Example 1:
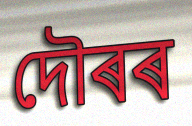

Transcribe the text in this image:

দৌৰৰ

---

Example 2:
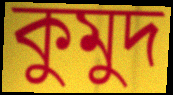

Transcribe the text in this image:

কুমুদ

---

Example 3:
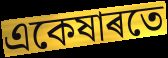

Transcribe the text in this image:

একেষাৰতে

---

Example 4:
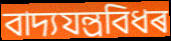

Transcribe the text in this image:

বাদ্যযন্ত্ৰবিধৰ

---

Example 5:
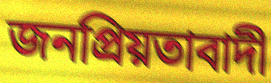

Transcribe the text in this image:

জনপ্ৰিয়তাবাদী